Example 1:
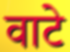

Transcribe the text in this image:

वाटे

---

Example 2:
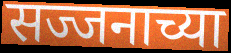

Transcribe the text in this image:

सज्जनाच्या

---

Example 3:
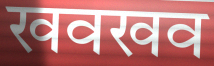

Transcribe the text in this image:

खवखव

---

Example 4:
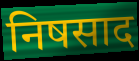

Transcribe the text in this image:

निषसाद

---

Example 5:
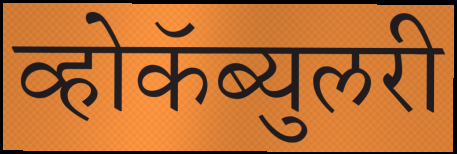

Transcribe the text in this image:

व्होकॅब्युलरी